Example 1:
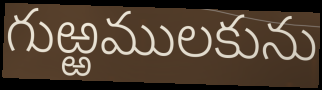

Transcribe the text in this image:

గుఱ్ఱములకును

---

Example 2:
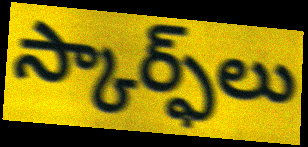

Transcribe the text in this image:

స్కార్ఫ్‌లు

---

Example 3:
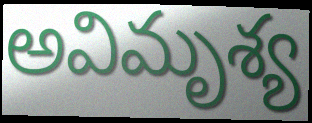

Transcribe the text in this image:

అవిమృశ్య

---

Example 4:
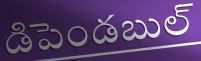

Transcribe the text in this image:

డిపెండబుల్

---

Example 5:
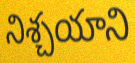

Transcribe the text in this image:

నిశ్చయాని